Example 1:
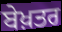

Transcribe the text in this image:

ਬੇਖ਼ਤਰ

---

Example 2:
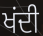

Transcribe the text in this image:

ਖਂਦੀ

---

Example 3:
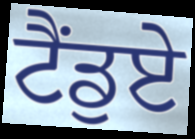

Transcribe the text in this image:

ਟੈਂਡੁਏ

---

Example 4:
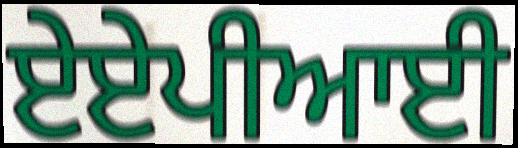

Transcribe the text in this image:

ਏਏਪੀਆਈ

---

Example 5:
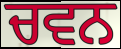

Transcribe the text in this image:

ਚਵਨ